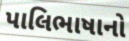
પાલિભાષાનો